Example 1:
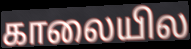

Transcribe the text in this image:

காலையில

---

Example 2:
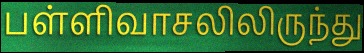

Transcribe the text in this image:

பள்ளிவாசலிலிருந்து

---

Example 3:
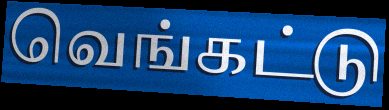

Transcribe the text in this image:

வெங்கட்டு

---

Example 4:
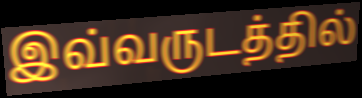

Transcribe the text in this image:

இவ்வருடத்தில்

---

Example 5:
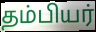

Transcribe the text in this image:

தம்பியர்